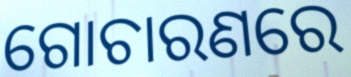
ଗୋଚାରଣରେ